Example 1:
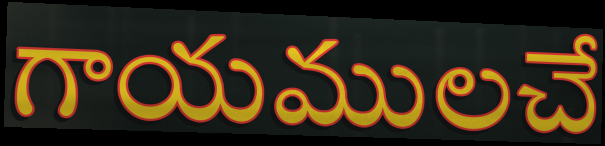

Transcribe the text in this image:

గాయములచే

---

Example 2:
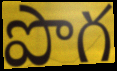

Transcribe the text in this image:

పొగ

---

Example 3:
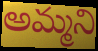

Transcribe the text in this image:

అమ్మని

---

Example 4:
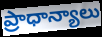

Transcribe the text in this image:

ప్రాధాన్యాలు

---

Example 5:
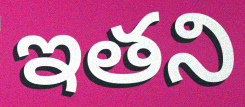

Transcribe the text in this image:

ఇతని